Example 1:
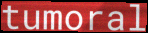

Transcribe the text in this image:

tumoral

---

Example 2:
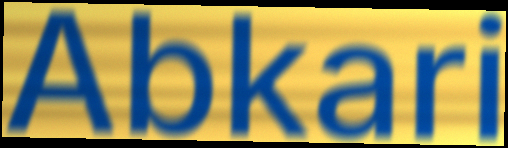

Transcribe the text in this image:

Abkari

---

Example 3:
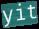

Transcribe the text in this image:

yit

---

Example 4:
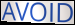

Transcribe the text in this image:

AVOID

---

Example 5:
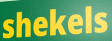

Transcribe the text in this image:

shekels